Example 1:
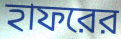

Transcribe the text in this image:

হাফরের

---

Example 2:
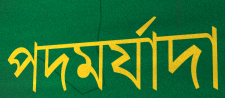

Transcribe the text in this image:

পদমর্যাদা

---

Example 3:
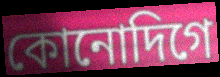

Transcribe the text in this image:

কোনোদিগে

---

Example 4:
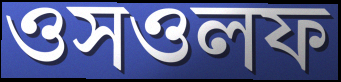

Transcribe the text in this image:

ওসওলফ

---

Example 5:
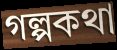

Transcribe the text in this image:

গল্পকথা